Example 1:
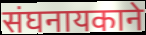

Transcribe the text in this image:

संघनायकाने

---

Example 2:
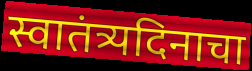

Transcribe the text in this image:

स्वातंत्र्यदिनाचा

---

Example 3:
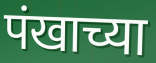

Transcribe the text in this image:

पंखाच्या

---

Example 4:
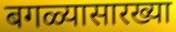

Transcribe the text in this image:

बगळ्यासारख्या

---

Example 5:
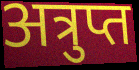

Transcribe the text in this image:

अत्रुप्त